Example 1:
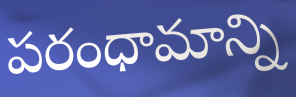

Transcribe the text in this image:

పరంధామాన్ని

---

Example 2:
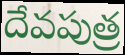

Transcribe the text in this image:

దేవపుత్ర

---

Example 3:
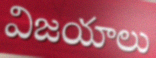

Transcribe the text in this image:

విజయాలు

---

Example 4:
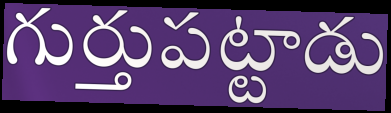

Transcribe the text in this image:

గుర్తుపట్టాడు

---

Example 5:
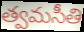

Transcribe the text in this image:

త్వమసీతి